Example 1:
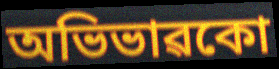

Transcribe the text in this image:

অভিভাৱকো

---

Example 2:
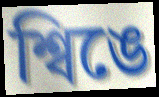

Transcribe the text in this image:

শ্বিঙে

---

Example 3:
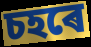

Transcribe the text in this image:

চহৰে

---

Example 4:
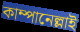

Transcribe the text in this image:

কাম্পানেল্লাই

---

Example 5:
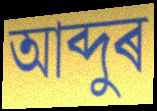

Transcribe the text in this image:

আব্দুৰ